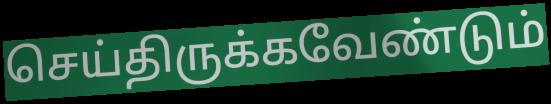
செய்திருக்கவேண்டும்